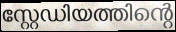
സ്റ്റേഡിയത്തിന്റെ